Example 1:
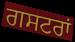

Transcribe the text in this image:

ਗਸਟਰਾਂ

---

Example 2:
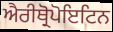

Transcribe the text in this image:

ਐਰੀਥ੍ਰੋਪੋਇਟਿਨ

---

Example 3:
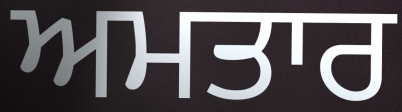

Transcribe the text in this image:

ਅਮਤਾਰ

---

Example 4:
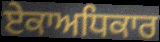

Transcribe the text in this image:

ਏਕਾਅਧਿਕਾਰ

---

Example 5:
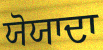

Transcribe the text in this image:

ਯੋਯਾਦਾ